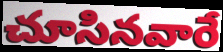
చూసినవారే